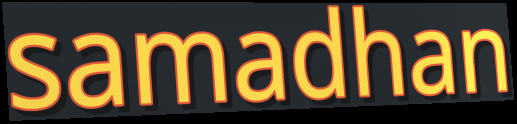
samadhan